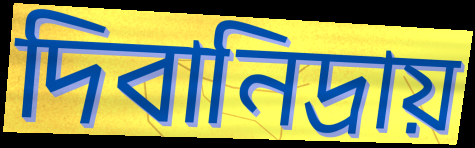
দিবানিদ্রায়